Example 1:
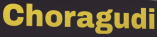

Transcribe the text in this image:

Choragudi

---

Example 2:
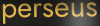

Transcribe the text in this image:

perseus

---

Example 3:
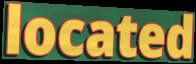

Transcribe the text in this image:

located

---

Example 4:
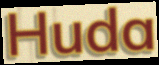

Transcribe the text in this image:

Huda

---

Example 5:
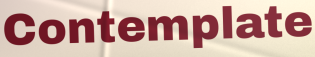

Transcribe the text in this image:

Contemplate